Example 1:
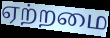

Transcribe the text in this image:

ஏற்றமை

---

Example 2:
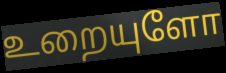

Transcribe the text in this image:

உறையுளோ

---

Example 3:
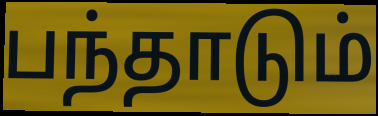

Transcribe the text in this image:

பந்தாடும்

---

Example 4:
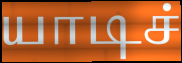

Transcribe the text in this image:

யாடிச்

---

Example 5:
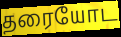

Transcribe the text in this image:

தரையோட